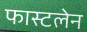
फास्टलेन